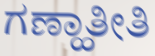
ಗಣ್ಹಾತೀತಿ